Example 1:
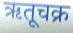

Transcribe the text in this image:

ऋतूचक्र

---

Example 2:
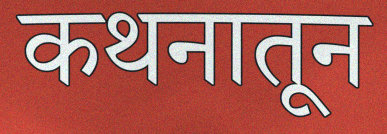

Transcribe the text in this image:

कथनातून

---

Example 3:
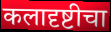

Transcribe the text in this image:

कलादृष्टीचा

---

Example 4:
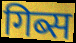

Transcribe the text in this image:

गिब्स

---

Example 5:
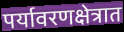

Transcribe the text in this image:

पर्यावरणक्षेत्रात